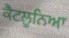
ਕੈਟਲੂਨਿਆ